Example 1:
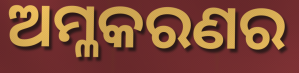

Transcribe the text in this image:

ଅମ୍ଳକରଣର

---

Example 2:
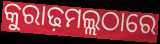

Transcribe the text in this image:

କୁରାଢ଼ମଲ୍ଲଠାରେ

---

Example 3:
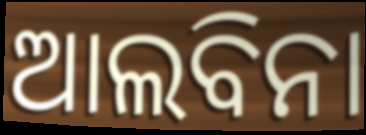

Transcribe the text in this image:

ଆଲବିନା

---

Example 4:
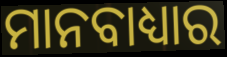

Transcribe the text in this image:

ମାନବାଧ୍ୟାର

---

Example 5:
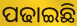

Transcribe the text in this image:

ପଢାଇଛି